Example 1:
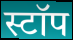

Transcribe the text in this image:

स्टॉप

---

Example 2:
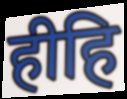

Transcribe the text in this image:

हीहि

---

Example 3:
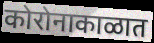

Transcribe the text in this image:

कोरोनाकाळात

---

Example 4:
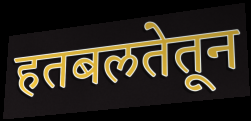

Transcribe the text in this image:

हतबलतेतून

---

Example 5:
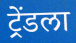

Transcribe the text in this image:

ट्रेंडला